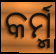
କର୍ମ୍ମ